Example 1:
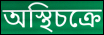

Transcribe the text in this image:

অস্থিচক্রে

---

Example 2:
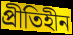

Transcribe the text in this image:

প্রীতিহীন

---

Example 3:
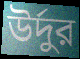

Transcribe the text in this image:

উর্দুর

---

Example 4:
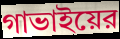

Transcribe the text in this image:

গাভাইয়ের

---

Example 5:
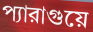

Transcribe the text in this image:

প্যারাগুয়ে